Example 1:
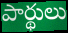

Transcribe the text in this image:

పార్థులు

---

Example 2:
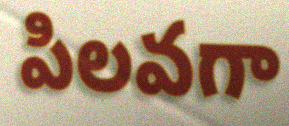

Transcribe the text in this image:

పిలవగా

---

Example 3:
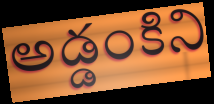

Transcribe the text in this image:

అడ్డంకిని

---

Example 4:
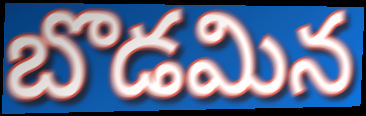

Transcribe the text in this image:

బొడమిన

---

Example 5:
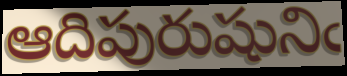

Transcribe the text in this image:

ఆదిపురుషునిఁ